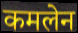
कमलेन